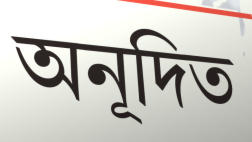
অনূদিত